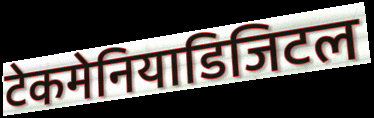
टेकमेनियाडिजिटल